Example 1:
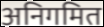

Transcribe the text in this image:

अनिगमित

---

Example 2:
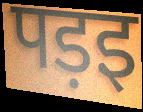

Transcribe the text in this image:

पड़इ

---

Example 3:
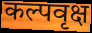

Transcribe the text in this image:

कल्‍पवृक्ष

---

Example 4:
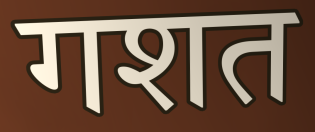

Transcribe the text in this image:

गशत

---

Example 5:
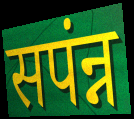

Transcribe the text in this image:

सपंन्न